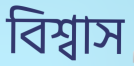
বিশ্বাস